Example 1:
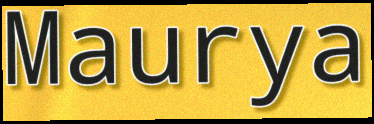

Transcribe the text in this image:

Maurya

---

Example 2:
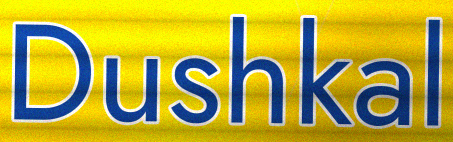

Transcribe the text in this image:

Dushkal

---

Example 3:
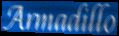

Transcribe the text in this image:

Armadillo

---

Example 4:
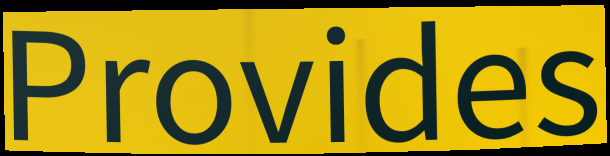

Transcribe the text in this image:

Provides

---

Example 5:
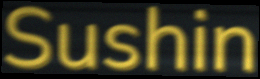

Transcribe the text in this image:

Sushin